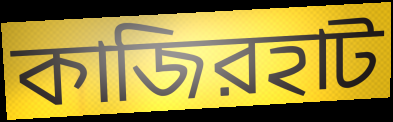
কাজিরহাট